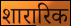
शारारिक